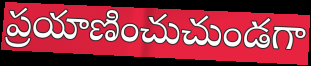
ప్రయాణించుచుండగా